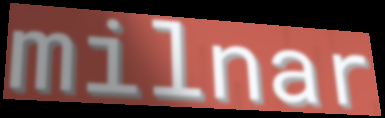
milnar